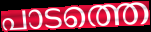
പാടത്തെ